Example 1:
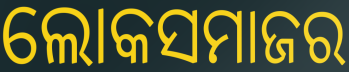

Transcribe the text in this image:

ଲୋକସମାଜର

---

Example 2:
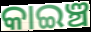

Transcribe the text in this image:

କାଇଞ୍ଚ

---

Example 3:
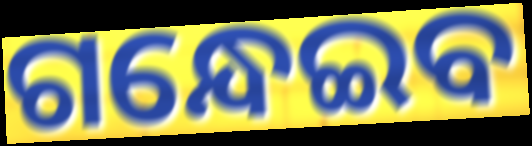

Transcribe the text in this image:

ଗନ୍ଧେଇବ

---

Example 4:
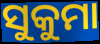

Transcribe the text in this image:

ସୁକୁମା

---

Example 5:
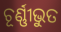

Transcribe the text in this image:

ଚୂର୍ଣ୍ଣୀଭୁତ